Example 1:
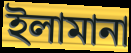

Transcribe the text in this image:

ইলামানা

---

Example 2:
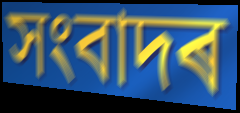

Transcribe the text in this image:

সংবাদৰ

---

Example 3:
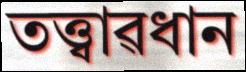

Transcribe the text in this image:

তত্ত্বাৱধান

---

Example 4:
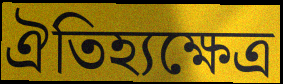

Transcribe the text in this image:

ঐতিহ্যক্ষেত্ৰ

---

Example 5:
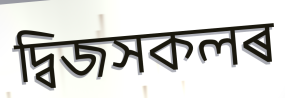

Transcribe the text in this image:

দ্বিজসকলৰ